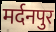
मर्दनपुर